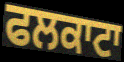
ਫਲਕਾਟਾ